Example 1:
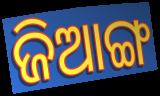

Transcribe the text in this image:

ଜିଆଙ୍ଗ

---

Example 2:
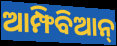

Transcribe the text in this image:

ଆମ୍ଫିବିଆନ୍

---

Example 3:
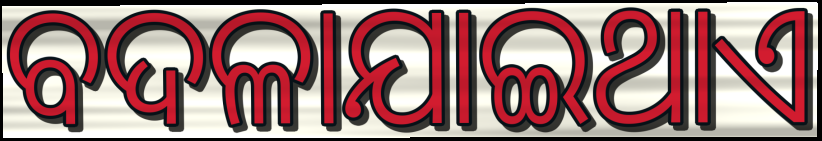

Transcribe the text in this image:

ବଦଳାଯାଇଥାଏ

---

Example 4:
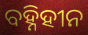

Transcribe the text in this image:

ବହ୍ନିହୀନ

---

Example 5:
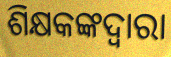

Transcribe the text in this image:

ଶିକ୍ଷକଙ୍କଦ୍ଵାରା